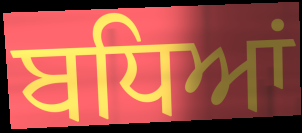
ਬਧਿਆਂ